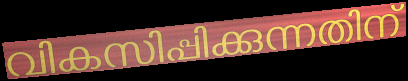
വികസിപ്പിക്കുന്നതിന്